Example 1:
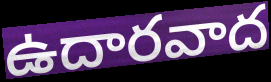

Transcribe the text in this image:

ఉదారవాద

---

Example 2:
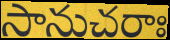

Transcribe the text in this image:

సానుచరాః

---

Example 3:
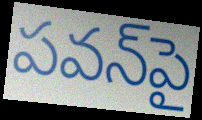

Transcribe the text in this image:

పవన్‌పై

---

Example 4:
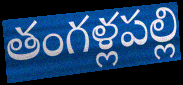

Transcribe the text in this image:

తంగళ్లపల్లి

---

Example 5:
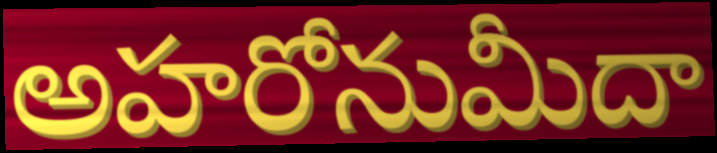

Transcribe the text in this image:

అహరోనుమీదా